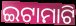
ଇଟାମାଟି